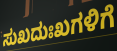
ಸುಖದುಃಖಗಳಿಗೆ